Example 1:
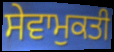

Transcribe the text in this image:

ਸੇਵਾਮੁਕਤੀ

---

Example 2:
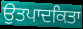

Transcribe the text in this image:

ਉਤਪਾਦਕਿਤਾ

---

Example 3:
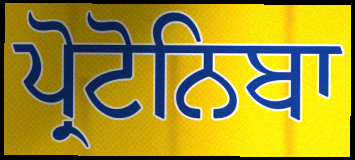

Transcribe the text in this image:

ਪ੍ਰੋਟੋਨਿਬਾ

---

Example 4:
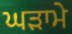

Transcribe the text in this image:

ਘੜਾਮੇ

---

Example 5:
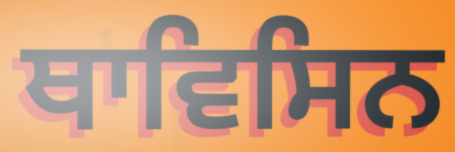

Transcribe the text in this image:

ਥਾਵਿਸਿਨ